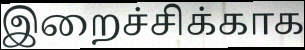
இறைச்சிக்காக